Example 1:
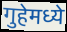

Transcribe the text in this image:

गुहेमध्ये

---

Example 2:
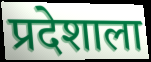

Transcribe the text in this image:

प्रदेशाला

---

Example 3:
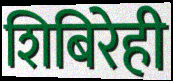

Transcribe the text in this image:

शिबिरेही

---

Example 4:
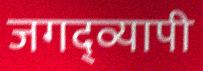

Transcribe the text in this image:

जगद्व्यापी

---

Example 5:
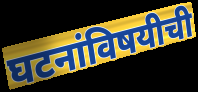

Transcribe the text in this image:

घटनांविषयीची